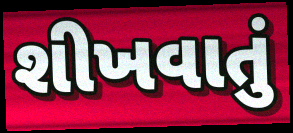
શીખવાતું